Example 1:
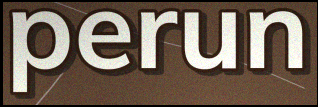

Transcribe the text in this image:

perun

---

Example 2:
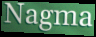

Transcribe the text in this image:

Nagma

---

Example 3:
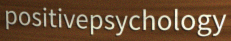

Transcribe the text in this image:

positivepsychology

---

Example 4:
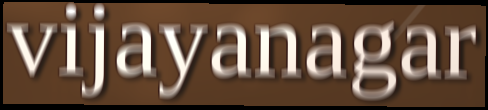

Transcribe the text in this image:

vijayanagar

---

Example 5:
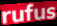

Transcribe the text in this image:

rufus